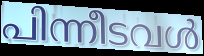
പിന്നീടവൾ